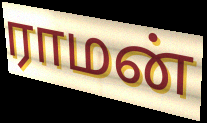
ராமன்